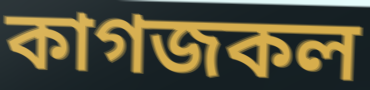
কাগজকল